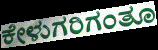
ಕೇಳುಗರಿಗಂತೂ